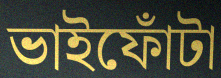
ভাইফোঁটা